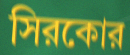
সিরকোর